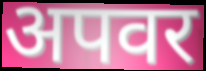
अपवर